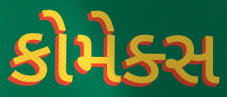
કોમેક્સ